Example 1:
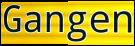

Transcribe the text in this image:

Gangen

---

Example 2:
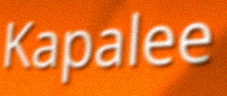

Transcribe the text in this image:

Kapalee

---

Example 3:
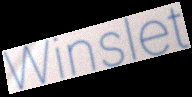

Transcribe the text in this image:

Winslet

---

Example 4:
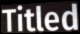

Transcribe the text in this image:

Titled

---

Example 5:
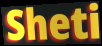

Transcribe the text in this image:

Sheti